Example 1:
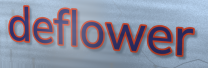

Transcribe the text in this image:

deflower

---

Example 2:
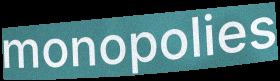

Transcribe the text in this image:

monopolies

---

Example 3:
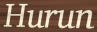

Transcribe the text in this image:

Hurun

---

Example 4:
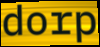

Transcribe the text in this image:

dorp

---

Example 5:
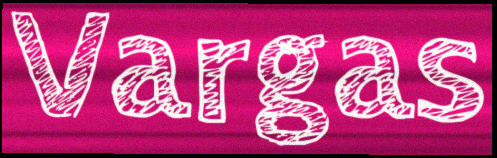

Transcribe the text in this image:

Vargas